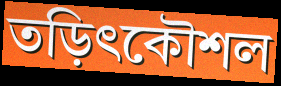
তড়িৎকৌশল